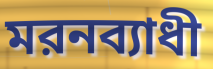
মরনব্যাধী